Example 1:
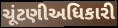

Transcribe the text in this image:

ચૂંટણીઅધિકારી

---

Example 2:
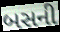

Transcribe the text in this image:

બસની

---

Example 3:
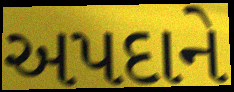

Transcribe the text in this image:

અપદાને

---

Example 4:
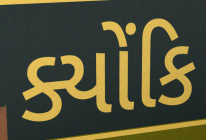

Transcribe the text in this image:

ક્યોંકિ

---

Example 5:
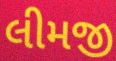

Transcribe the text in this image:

લીમજી